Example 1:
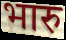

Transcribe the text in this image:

भारु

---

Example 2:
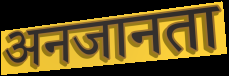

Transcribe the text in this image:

अनजानता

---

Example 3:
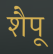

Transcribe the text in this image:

शैपू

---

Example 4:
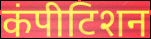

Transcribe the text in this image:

कंपीटिशन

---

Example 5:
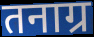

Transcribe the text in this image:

तनाग्र